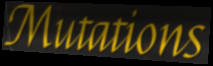
Mutations